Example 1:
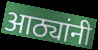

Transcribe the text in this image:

आठ्यांनी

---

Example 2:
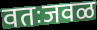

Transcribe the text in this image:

वतःजवळ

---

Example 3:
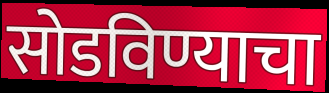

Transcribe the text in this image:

सोडविण्याचा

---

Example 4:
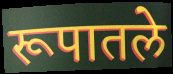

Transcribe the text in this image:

रूपातले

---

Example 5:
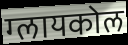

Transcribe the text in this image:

ग्लायकोल